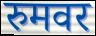
रुमवर